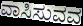
ವಾಸಿಸುವವ